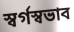
স্বর্গস্বভাব